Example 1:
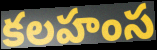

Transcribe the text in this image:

కలహంస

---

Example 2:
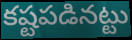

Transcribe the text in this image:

కష్టపడినట్టు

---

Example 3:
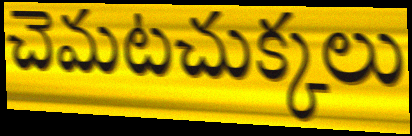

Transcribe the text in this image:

చెమటచుక్కలు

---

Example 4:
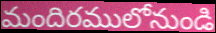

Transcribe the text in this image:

మందిరములోనుండి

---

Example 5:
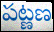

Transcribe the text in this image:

పట్ణణ